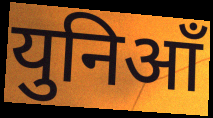
युनिआँ